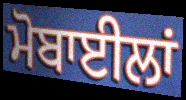
ਮੋਬਾਈਲਾਂ